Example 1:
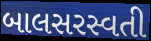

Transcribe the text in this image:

બાલસરસ્વતી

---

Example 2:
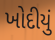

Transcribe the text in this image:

ખોદીયું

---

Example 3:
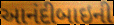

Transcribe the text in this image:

આનંદીબાઇની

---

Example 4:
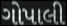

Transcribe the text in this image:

ગોપાલી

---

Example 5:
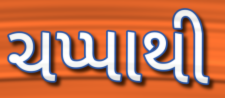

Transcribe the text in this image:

ચપ્પાથી